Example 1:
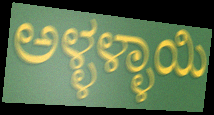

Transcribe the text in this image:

ಅಳ್ಳಳ್ಳಾಯಿ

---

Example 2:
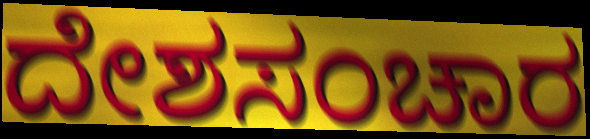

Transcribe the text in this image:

ದೇಶಸಂಚಾರ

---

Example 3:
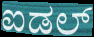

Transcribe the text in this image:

ಐಡಲ್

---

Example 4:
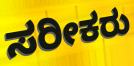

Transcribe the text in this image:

ಸರೀಕರು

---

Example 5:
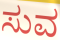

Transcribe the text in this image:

ಸುವ